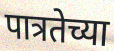
पात्रतेच्या